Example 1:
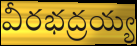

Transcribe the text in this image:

వీరభద్రయ్య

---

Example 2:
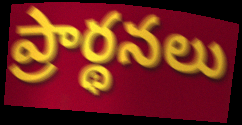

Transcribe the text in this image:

ప్రార్థనలు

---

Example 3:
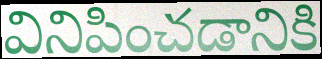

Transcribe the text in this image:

వినిపించడానికి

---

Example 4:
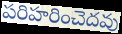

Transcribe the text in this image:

పరిహరించెదవు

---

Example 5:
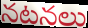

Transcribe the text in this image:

నటనలు